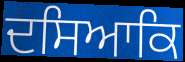
ਦਸਿਆਕਿ